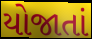
યોજાતાં